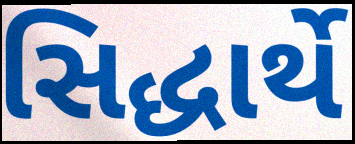
સિદ્ધાર્થે